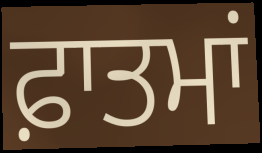
ਫ਼ਾਤਮਾਂ